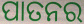
ପାତନର